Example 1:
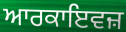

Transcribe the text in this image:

ਆਰਕਾਇਵਜ਼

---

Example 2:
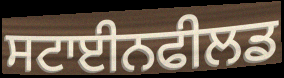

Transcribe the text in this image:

ਸਟਾਈਨਫੀਲਡ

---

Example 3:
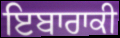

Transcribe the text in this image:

ਇਬਾਰਾਕੀ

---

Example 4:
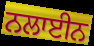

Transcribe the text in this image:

ਨਲਾਈਨ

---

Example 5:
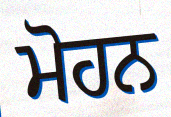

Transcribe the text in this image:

ਮੋਹਨ